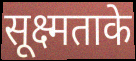
सूक्ष्मताके